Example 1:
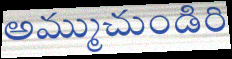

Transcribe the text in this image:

అమ్ముచుండిరి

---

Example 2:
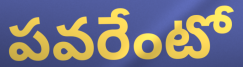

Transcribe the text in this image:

పవరేంటో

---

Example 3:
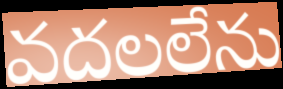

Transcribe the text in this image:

వదలలేను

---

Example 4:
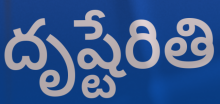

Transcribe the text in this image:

దృష్టేరితి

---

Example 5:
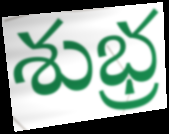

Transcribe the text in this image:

శుభ్ర